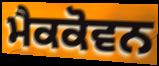
ਮੈਕਕੋਵਨ